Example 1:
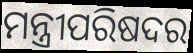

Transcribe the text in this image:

ମନ୍ତ୍ରୀପରିଷଦର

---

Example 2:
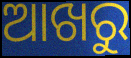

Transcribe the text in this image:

ଆଖରୁ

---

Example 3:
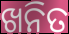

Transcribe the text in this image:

ଖନିତ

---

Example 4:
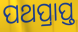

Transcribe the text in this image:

ପଥପ୍ରାପ୍ତ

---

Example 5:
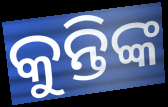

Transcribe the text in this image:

କୁନ୍ତିଙ୍କ